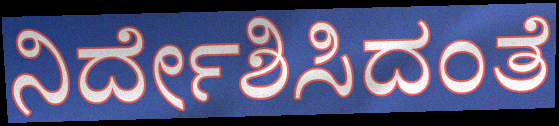
ನಿರ್ದೇಶಿಸಿದಂತೆ